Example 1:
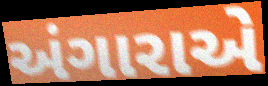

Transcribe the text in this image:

અંગારાએ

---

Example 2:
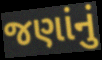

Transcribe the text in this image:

જણાંનું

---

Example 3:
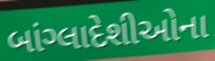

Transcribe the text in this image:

બાંગ્લાદેશીઓના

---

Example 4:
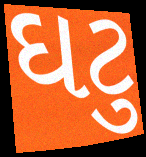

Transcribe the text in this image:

ઘટુ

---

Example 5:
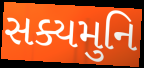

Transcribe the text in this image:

સક્યમુનિ